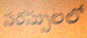
సరస్సులలో